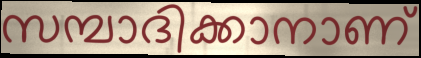
സമ്പാദിക്കാനാണ്